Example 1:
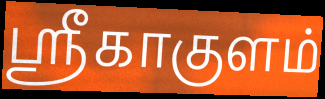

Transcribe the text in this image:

ஸ்ரீகாகுளம்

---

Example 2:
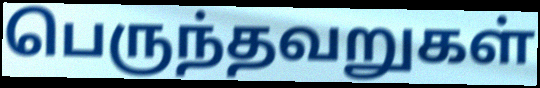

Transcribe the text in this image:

பெருந்தவறுகள்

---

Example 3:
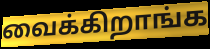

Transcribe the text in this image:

வைக்கிறாங்க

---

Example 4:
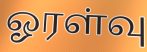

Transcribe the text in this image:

ஓரள்வு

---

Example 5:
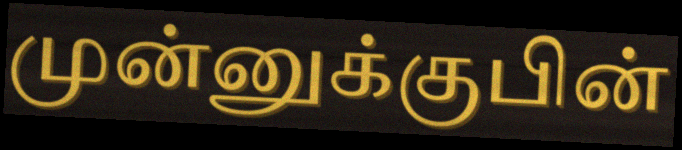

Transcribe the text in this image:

முன்னுக்குபின்